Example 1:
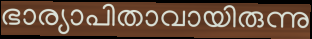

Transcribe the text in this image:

ഭാര്യാപിതാവായിരുന്നു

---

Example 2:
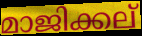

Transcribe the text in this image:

മാജിക്കല്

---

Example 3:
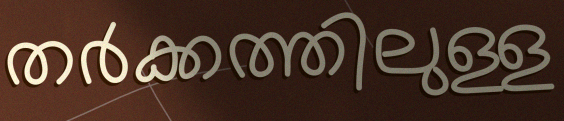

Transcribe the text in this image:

തർക്കത്തിലുള്ള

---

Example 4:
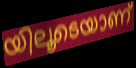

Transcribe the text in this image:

യിലൂടെയാണ്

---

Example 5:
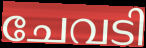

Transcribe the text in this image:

ചേവടി